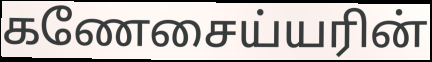
கணேசைய்யரின்